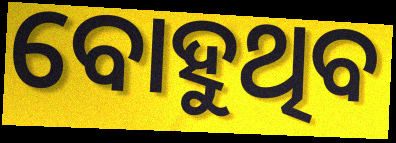
ବୋହୁଥିବ